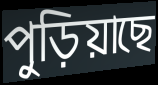
পুড়িয়াছে